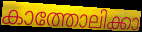
കാത്തോലിക്കാ